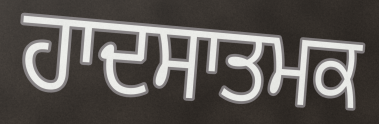
ਹਾਦਸਾਤਮਕ